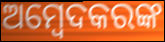
ଅମ୍ବେଦକରଙ୍କ